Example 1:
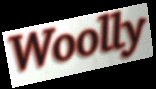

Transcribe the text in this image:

Woolly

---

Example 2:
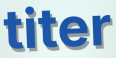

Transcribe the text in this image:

titer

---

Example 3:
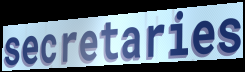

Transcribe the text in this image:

secretaries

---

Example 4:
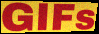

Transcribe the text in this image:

GIFs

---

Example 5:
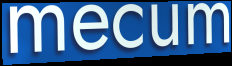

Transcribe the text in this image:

mecum